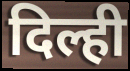
दिल्ही